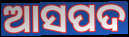
ଆସପଦ